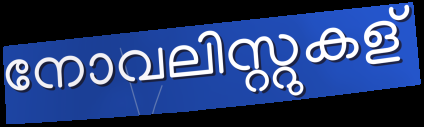
നോവലിസ്റ്റുകള്